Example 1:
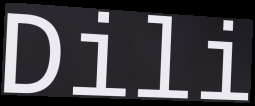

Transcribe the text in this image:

Dili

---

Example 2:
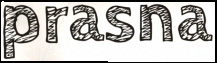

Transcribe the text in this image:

prasna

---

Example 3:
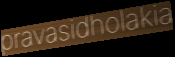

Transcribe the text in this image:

pravasidholakia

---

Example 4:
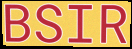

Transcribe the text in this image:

BSIR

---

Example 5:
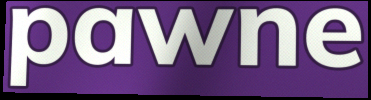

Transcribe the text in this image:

pawne